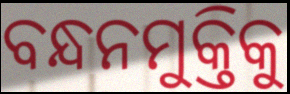
ବନ୍ଧନମୁକ୍ତିକୁ